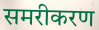
समरीकरण